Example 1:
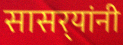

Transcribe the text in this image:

सासर्‍यांनी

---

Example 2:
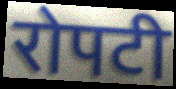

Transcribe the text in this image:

रोपटी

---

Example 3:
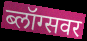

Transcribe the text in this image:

ब्लॉग्सवर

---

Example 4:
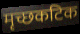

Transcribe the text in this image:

मृच्छकटिक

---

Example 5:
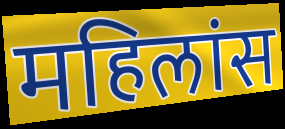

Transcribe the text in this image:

महिलांस